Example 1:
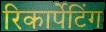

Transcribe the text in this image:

रिकार्पेटिंग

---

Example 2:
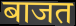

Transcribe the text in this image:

बाजत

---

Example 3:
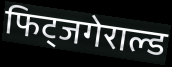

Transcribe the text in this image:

फिट्जगेराल्ड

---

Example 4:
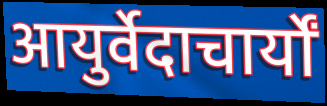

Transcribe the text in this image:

आयुर्वेदाचार्यों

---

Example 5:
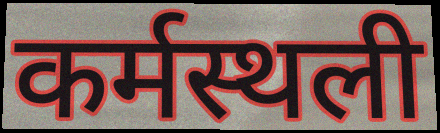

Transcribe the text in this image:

कर्मस्थली